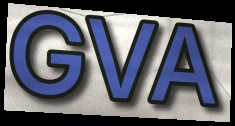
GVA